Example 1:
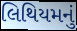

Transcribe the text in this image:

લિથિયમનું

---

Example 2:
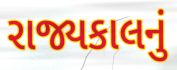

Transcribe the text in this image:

રાજ્યકાલનું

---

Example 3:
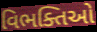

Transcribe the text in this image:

વિભક્તિઓ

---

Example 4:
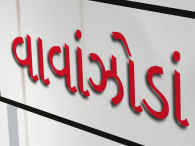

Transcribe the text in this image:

વાવાંઝોડાં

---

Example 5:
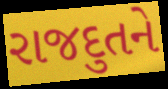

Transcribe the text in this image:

રાજદુતને